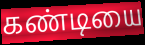
கண்டியை